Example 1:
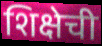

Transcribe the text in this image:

शिक्षेची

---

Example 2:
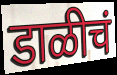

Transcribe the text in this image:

डाळीचं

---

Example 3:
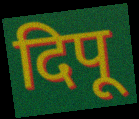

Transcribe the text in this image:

दिपू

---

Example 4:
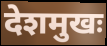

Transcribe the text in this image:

देशमुखः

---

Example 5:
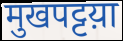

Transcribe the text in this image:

मुखपट्टय़ा